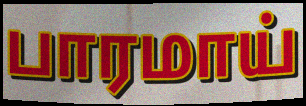
பாரமாய்